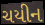
ચયીન